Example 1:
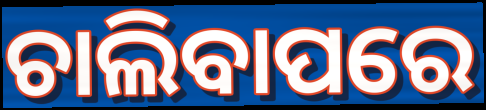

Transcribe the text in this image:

ଚାଲିବାପରେ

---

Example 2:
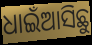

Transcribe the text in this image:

ଧାଇଁଆସିଛୁ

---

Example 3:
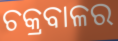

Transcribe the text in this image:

ଚକ୍ରବାଳର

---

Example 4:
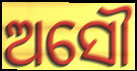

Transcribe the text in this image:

ଅସୌ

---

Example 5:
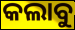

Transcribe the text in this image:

କଲାବୁ